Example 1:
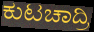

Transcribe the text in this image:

ಕುಟಚಾದ್ರಿ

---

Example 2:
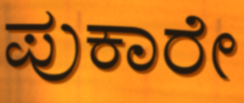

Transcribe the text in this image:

ಪುಕಾರೇ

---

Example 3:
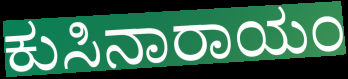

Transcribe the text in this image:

ಕುಸಿನಾರಾಯಂ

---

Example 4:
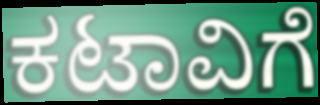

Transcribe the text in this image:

ಕಟಾವಿಗೆ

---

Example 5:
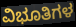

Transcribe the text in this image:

ವಿಭೂತಿಗಳ